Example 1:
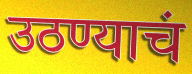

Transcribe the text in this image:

उठण्याचं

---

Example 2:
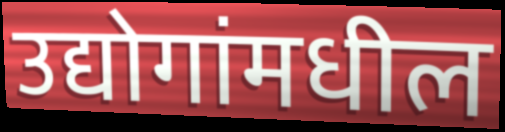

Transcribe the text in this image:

उद्योगांमधील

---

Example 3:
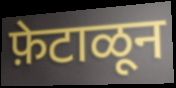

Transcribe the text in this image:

फ़ेटाळून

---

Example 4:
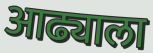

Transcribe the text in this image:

आढ्याला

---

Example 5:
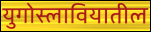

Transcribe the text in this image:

युगोस्लावियातील